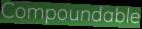
Compoundable